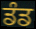
ਡੰਡ